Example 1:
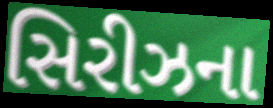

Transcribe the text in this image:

સિરીઝના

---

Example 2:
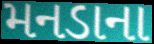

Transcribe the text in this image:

મનડાના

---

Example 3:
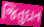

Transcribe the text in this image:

જિતુદાન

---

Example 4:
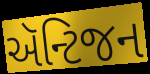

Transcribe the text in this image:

ઍન્ટિજન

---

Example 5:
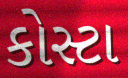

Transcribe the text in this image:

કોસ્ટા